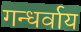
गन्धर्वाय